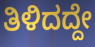
ತಿಳಿದದ್ದೇ